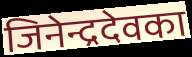
जिनेन्द्रदेवका